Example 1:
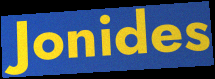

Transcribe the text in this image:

Jonides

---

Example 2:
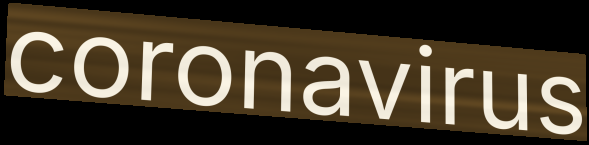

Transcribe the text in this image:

coronavirus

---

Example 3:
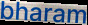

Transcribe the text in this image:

bharam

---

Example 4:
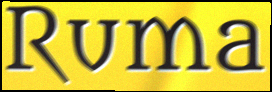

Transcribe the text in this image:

Ruma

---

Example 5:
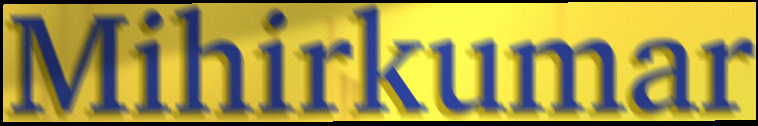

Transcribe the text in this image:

Mihirkumar